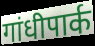
गांधीपार्क